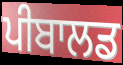
ਪੀਬਾਲਡ